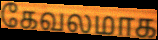
கேவலமாக